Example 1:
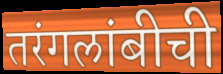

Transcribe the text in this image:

तरंगलांबीची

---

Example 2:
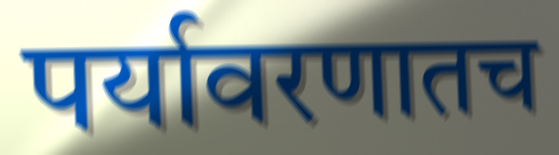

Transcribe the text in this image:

पर्यावरणातच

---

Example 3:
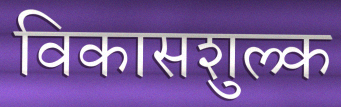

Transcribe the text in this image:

विकासशुल्क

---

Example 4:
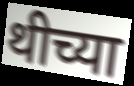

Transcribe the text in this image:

थीच्या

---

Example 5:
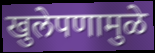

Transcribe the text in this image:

खुलेपणामुळे